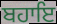
ਬਹਾਇ